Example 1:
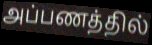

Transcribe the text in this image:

அப்பணத்தில்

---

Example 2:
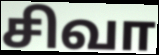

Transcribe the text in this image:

சிவா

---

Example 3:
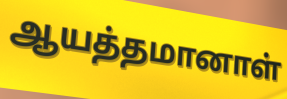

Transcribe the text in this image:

ஆயத்தமானாள்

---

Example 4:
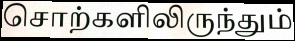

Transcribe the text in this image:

சொற்களிலிருந்தும்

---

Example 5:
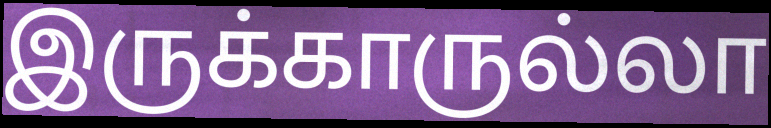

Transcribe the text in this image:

இருக்காருல்லா